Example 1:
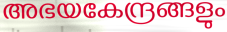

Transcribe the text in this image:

അഭയകേന്ദ്രങ്ങളും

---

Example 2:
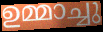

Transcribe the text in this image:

ഉമ്മാച്ചു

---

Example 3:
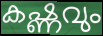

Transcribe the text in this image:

കഷ്ണവും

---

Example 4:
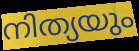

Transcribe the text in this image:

നിത്യയും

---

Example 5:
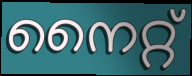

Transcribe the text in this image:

നൈറ്റ്